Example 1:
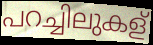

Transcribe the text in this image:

പറച്ചിലുകള്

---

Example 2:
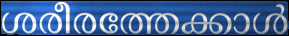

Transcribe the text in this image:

ശരീരത്തേക്കാൾ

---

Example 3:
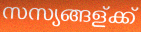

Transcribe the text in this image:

സസ്യങ്ങള്ക്ക്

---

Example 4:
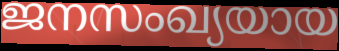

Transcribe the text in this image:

ജനസംഖ്യയായ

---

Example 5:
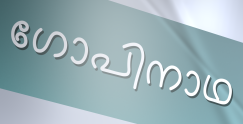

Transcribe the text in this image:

ഗോപിനാഥ